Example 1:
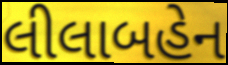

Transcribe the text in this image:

લીલાબહેન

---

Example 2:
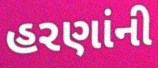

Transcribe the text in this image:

હરણાંની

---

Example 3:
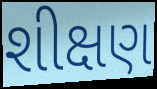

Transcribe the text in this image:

શીક્ષણ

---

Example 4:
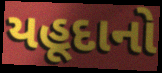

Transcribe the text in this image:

યહૂદાનો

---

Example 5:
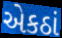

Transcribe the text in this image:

એકઠાં